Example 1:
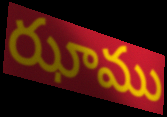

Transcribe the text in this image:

ఝాము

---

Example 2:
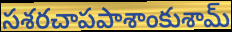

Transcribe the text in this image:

సశరచాపపాశాంకుశామ్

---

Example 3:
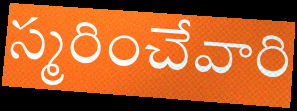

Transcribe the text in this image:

స్మరించేవారి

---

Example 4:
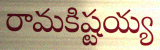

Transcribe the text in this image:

రామకిష్టయ్య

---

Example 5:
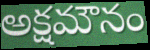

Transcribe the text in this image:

అక్షమౌనం